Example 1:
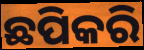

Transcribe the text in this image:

ଛପିକରି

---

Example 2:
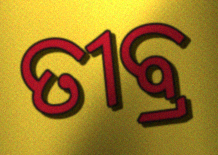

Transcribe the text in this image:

ତୀବ୍ର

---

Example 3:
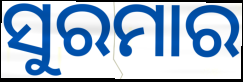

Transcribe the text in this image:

ସୁରମାର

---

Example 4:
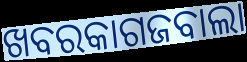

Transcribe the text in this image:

ଖବରକାଗଜବାଲା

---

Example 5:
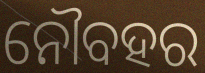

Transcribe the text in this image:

ନୌବହର